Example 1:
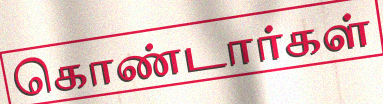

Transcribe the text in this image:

கொண்டார்கள்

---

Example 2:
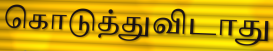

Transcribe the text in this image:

கொடுத்துவிடாது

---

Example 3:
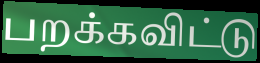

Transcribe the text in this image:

பறக்கவிட்டு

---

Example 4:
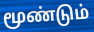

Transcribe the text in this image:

மூண்டும்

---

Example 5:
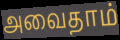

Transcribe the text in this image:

அவைதாம்